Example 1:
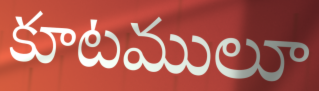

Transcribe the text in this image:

కూటములూ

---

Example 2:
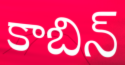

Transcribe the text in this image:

కాబిన్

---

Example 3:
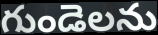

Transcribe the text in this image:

గుండెలను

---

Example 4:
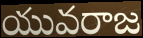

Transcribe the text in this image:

యువరాజ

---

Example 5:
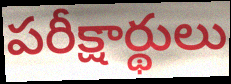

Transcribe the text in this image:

పరీక్షార్థులు